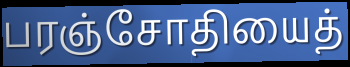
பரஞ்சோதியைத்